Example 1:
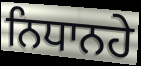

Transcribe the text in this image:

ਨਿਧਾਨਹੇ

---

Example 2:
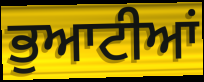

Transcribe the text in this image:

ਭੁਆਟੀਆਂ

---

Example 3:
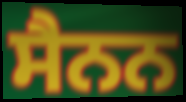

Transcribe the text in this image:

ਸੈਨਨ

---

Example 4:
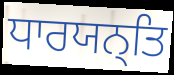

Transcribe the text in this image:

ਧਾਰਯਨ੍ਤਿ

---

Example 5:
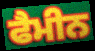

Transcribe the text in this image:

ਫੈਮੀਨ